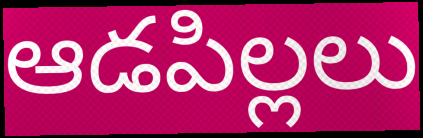
ఆడపిల్లలు